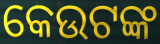
କେଉଟଙ୍କ